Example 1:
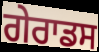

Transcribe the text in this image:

ਗੇਰਾਡਸ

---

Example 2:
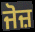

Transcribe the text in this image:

ਜੋਜ਼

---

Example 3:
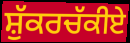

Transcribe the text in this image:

ਸ਼ੁੱਕਰਚੱਕੀਏ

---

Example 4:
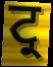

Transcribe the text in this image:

ਟ੍ਰ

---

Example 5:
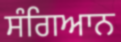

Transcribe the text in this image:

ਸੰਗਿਆਨ